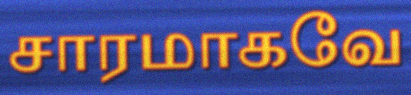
சாரமாகவே